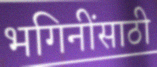
भगिनींसाठी